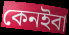
কেনইবা